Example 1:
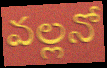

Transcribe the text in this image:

వల్లనో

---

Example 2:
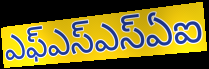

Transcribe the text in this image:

ఎఫ్ఎస్ఎస్ఏఐ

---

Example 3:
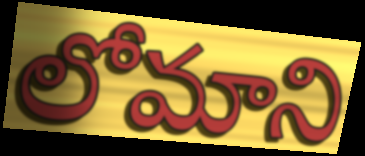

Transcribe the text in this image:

లోమాని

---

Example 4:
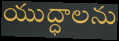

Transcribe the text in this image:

యుద్ధాలను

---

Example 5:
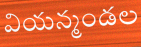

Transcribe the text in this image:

వియన్మండల